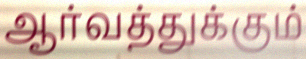
ஆர்வத்துக்கும்